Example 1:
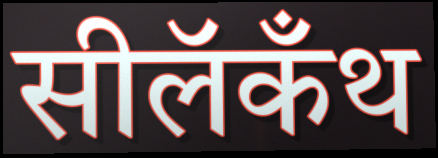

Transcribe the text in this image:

सीलॅकँथ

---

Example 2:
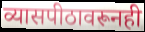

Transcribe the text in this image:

व्यासपीठावरूनही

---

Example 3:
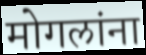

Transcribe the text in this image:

मोगलांना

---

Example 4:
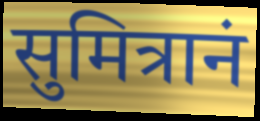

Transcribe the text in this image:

सुमित्रानं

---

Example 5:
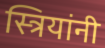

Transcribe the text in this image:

स्त्रियांनी